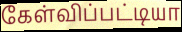
கேள்விப்பட்டியா